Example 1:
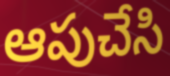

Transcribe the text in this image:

ఆపుచేసి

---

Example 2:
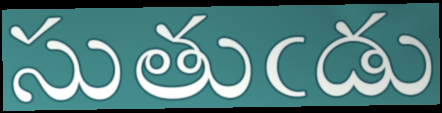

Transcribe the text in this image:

సుతుఁడు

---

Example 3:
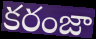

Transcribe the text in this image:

కరంజా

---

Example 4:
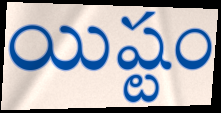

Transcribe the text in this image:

యిష్టం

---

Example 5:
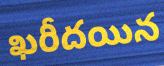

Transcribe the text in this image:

ఖరీదయిన